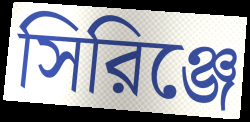
সিরিঞ্জে